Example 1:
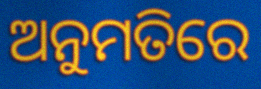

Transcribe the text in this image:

ଅନୁମତିରେ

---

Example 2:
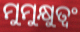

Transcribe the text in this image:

ମୁମୁକ୍ଷୁତ୍ୱଂ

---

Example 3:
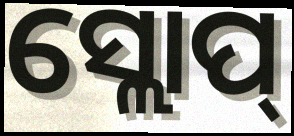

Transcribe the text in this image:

ସ୍ଲୋପ୍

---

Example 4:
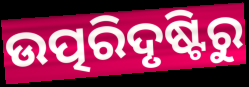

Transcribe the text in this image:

ଉତ୍ପରିଦୃଷ୍ଟିରୁ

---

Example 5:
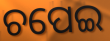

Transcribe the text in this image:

ଚପେଇ